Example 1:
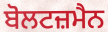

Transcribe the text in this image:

ਬੋਲਟਜ਼ਮੈਨ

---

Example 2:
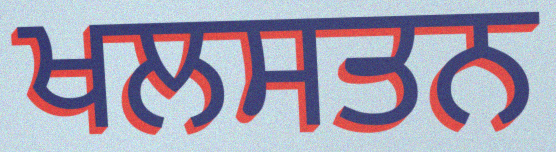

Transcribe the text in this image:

ਖਲਸਤਨ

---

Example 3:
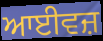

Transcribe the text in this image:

ਆਈਵਜ਼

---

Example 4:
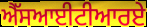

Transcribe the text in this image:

ਐੱਸਆਈਟੀਆਰਏ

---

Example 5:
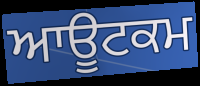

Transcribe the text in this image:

ਆਊਟਕਮ